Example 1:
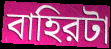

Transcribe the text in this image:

বাহিরটা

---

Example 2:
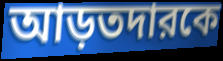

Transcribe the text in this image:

আড়তদারকে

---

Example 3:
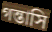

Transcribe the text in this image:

গন্তাসি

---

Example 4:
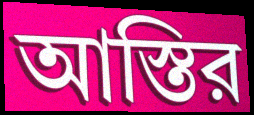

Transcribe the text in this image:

আস্তির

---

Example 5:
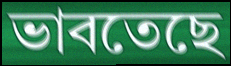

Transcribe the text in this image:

ভাবতেছে